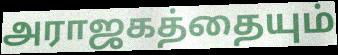
அராஜகத்தையும்